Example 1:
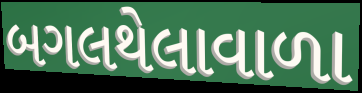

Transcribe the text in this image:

બગલથેલાવાળા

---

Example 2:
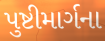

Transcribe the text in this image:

પુષ્ટીમાર્ગના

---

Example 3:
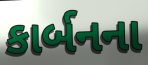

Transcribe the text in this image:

કાર્બનના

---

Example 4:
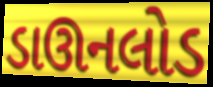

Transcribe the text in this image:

ડાઊનલોડ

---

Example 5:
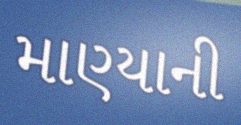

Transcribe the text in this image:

માણ્યાની